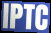
IPTC